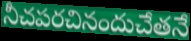
నీచపరచినందుచేతనే